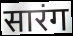
सारंग